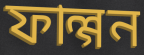
ফাল্গন